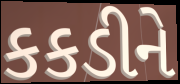
કકડીને